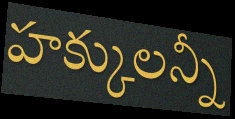
హక్కులన్నీ